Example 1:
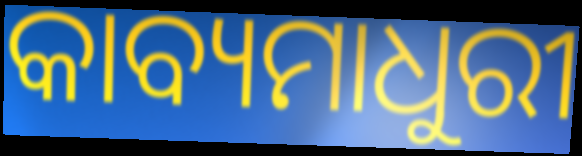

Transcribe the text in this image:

କାବ୍ୟମାଧୁରୀ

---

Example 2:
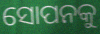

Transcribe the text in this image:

ସୋପନକୁ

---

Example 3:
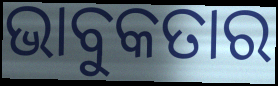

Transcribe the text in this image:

ଭାବୁକତାର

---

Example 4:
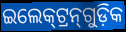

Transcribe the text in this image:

ଇଲେକ୍‍ଟ୍ରନ୍‍ଗୁଡ଼ିକ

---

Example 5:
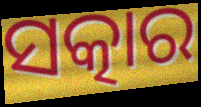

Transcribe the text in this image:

ସତ୍କାର